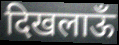
दिखलाऊँ